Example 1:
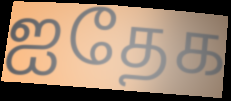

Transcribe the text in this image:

ஐதேக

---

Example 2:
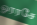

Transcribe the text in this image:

ஓரரசே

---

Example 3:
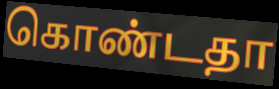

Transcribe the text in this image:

கொண்டதா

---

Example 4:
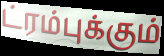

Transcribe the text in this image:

ட்ரம்புக்கும்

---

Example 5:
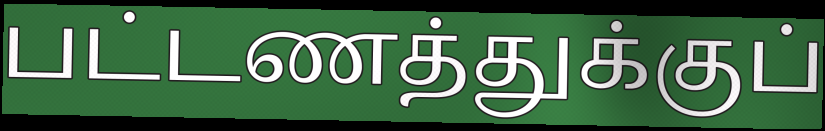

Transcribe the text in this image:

பட்டணத்துக்குப்